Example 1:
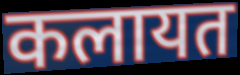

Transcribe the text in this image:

कलायत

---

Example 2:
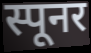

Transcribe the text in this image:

स्पूनर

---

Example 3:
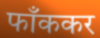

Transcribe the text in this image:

फाँककर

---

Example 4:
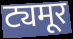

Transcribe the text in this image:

ट्यमूर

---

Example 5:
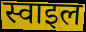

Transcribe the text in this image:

स्वाइल